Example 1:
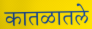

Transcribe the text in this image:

कातळातले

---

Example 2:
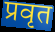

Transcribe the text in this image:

प्रवृत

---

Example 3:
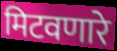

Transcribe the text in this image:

मिटवणारे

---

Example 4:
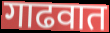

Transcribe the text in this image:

गाढवात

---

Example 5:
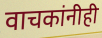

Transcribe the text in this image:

वाचकांनीही